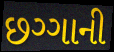
છગ્ગાની